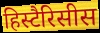
हिस्टैरिसीस